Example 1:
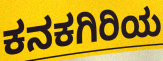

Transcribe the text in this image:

ಕನಕಗಿರಿಯ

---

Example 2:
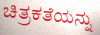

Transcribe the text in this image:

ಚಿತ್ರಕತೆಯನ್ನು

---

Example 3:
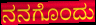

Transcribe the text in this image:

ನನಗೊಂದು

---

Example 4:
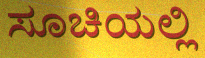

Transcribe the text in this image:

ಸೂಚಿಯಲ್ಲಿ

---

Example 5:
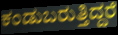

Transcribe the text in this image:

ಕಂಡುಬರುತ್ತಿದ್ದರೆ